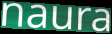
naura